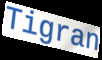
Tigran